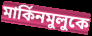
মার্কিনমুলুকে